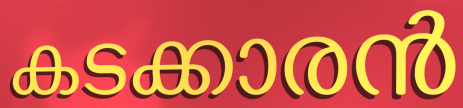
കടക്കാരൻ